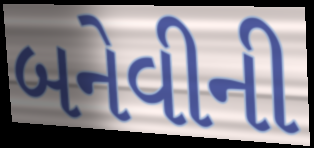
બનેવીની